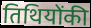
तिथियोंकी